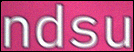
ndsu